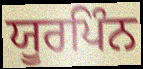
ਯੂਰਪਿੰਨ